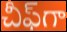
చీఫ్‌గా